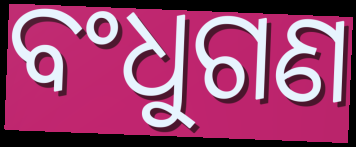
ବଂଧୁଗଣ